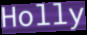
Holly